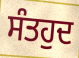
ਸੰਤਹੁਦ